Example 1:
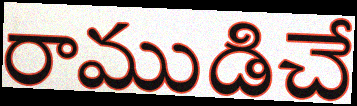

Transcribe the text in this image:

రాముడిచే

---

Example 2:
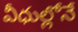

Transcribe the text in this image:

వీధుల్లోనే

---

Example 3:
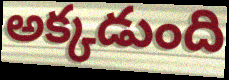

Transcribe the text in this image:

అక్కడుంది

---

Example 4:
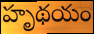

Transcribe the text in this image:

హృథయం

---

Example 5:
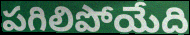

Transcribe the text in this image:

పగిలిపోయేది